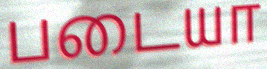
படையா